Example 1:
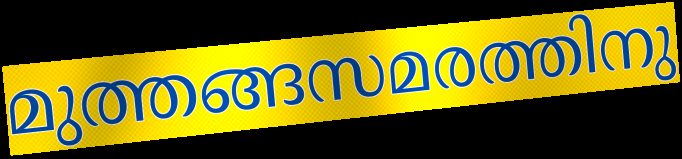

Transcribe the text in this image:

മുത്തങ്ങസമരത്തിനു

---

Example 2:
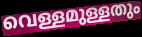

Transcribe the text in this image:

വെള്ളമുള്ളതും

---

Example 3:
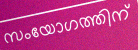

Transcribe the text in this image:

സംയോഗത്തിന്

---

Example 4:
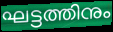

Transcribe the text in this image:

ഘട്ടത്തിനും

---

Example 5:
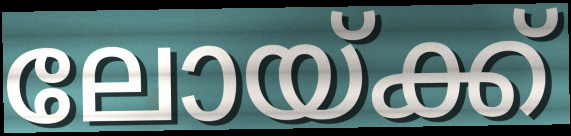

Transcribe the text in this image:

ലോയ്ക്ക്